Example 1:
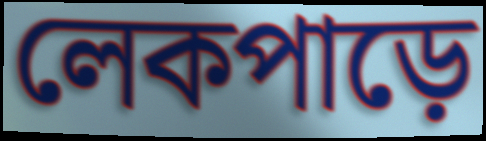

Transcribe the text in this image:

লেকপাড়ে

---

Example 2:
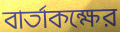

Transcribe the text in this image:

বার্তাকক্ষের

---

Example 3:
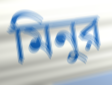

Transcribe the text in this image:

মিনুর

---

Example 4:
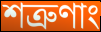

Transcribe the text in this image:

শত্রুণাং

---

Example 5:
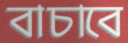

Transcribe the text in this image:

বাচাবে